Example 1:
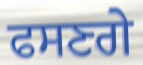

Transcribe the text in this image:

ਫਸਣਗੇ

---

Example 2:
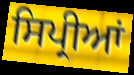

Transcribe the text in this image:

ਸਿਪ੍ਰੀਆਂ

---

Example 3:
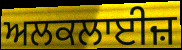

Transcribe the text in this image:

ਅਲਕਲਾਈਜ਼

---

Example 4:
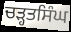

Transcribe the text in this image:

ਚੜ੍ਹਤਸਿੰਘ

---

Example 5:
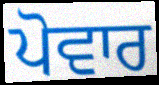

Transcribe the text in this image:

ਪੋਵਾਰ